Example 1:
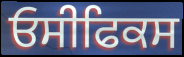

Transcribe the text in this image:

ਓਸੀਫਿਕਸ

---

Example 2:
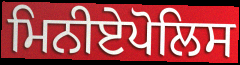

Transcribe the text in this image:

ਮਿਨੀਏਪੋਲਿਸ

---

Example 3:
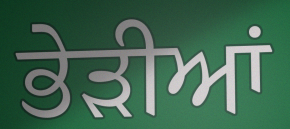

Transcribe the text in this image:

ਭੇੜੀਆਂ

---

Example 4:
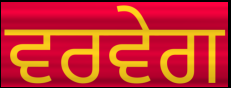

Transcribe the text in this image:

ਵਰਵੇਗ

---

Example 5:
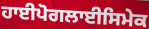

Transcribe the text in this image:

ਹਾਈਪੋਗਲਾਈਸਿਮੇਕ